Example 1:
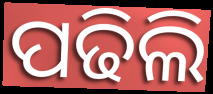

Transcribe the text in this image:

ପଢିଲି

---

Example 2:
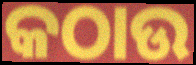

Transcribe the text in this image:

କଠାଉ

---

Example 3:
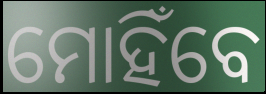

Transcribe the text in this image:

ମୋହିଁବେ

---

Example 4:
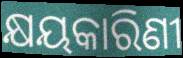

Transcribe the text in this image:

କ୍ଷୟକାରିଣୀ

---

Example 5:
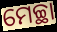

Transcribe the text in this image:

ମେଚ୍ଛା